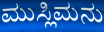
ಮುಸ್ಲಿಮನು